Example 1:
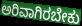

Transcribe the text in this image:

ಅರಿವಾಗಿರಬೇಕು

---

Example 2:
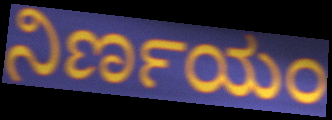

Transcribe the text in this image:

ನಿರ್ಣಯಂ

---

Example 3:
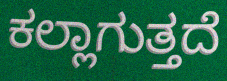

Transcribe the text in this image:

ಕಲ್ಲಾಗುತ್ತದೆ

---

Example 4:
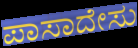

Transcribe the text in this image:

ಪಾಸಾದೇಸು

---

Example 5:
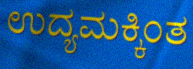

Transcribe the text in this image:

ಉದ್ಯಮಕ್ಕಿಂತ